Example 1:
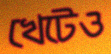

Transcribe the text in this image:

খেটেও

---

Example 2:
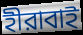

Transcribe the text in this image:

হীরাবাই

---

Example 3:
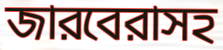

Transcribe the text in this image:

জারবেরাসহ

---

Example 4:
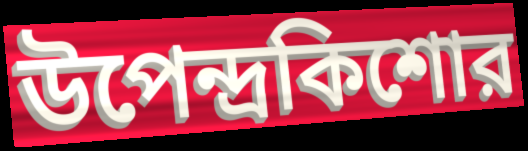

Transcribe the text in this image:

উপেন্দ্রকিশোর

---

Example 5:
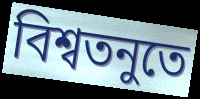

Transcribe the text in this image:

বিশ্বতনুতে